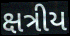
ક્ષત્રીય